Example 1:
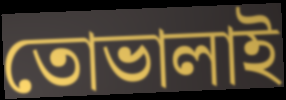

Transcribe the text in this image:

তোভালাই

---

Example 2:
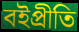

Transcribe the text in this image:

বইপ্রীতি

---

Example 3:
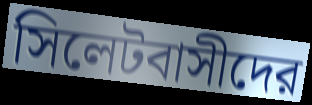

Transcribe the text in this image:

সিলেটবাসীদের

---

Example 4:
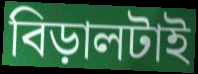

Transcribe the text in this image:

বিড়ালটাই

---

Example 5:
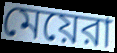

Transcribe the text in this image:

মেয়েরা